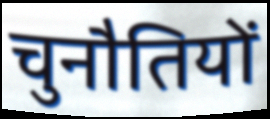
चुनौतियों